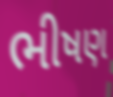
ભીષણ